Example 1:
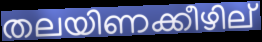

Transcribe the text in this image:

തലയിണക്കീഴില്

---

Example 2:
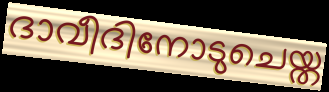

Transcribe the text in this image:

ദാവീദിനോടുചെയ്ത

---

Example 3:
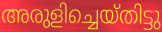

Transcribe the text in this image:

അരുളിച്ചെയ്തിട്ടു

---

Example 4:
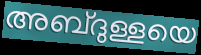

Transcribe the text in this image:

അബ്ദുള്ളയെ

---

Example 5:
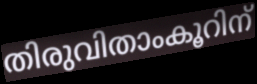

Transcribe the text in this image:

തിരുവിതാംകൂറിന്